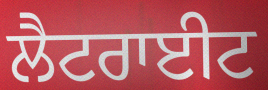
ਲੈਟਰਾਈਟ